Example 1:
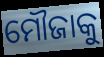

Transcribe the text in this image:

ମୌଜାକୁ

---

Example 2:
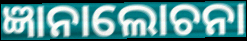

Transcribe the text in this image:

ଜ୍ଞାନାଲୋଚନା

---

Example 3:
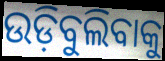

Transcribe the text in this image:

ଉଡ଼ିବୁଲିବାକୁ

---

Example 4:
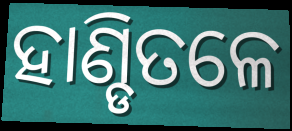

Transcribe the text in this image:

ହାଣ୍ଡିତଳେ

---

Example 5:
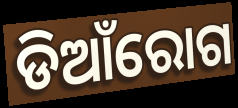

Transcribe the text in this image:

ଡିଆଁରୋଗ